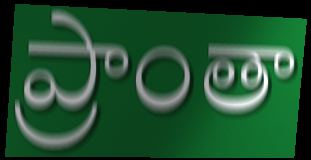
ప్రాంతా